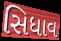
સિધાવ